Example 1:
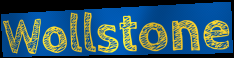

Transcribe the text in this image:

Wollstone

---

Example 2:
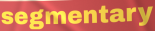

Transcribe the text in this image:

segmentary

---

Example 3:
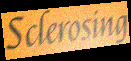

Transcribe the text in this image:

Sclerosing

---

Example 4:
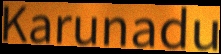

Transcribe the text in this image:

Karunadu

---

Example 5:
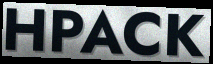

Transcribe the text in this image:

HPACK